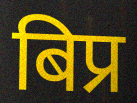
बिप्र